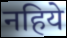
नहिये